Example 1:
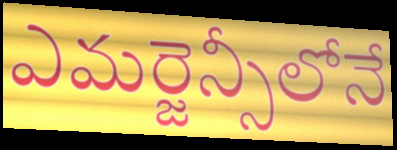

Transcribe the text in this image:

ఎమర్జెన్సీలోనే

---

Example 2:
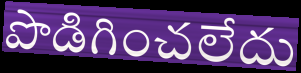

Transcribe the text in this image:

పొడిగించలేదు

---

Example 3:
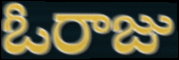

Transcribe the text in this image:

ఓరాజు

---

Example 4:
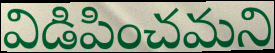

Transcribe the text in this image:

విడిపించమని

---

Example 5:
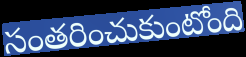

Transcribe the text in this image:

సంతరించుకుంటోంది